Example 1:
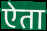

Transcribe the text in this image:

ऐता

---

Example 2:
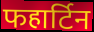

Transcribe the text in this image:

फहार्टिन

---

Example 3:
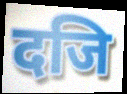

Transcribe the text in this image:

दजि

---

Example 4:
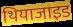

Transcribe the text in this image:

थियाजाइड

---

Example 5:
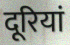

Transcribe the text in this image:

दूरियां